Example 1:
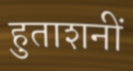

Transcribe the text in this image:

हुताशनीं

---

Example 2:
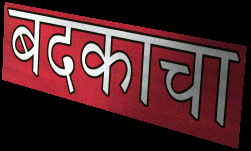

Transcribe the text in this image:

बदकाचा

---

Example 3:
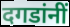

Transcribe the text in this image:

दगडांनीं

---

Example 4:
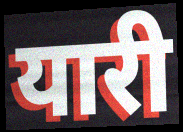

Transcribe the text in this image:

यारी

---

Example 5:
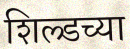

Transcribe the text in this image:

शिल्डच्या